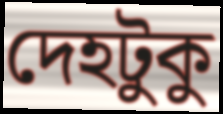
দেহটুকু